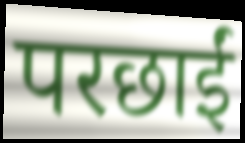
परछाईं